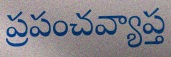
ప్రపంచవ్యాప్త